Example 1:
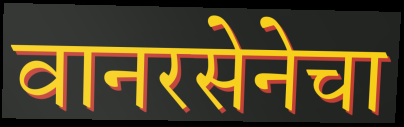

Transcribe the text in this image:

वानरसेनेचा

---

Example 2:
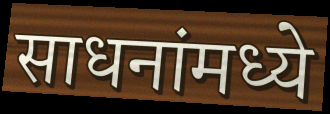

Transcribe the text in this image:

साधनांमध्ये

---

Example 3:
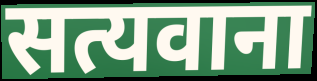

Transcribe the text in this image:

सत्यवाना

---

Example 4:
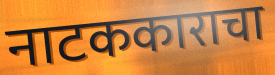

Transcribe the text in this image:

नाटककाराचा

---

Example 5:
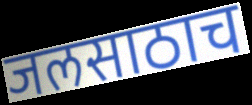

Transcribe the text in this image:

जलसाठाच